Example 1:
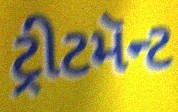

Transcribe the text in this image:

ટ્રીટમૅન્ટ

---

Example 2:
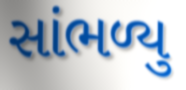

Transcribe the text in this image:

સાંભળ્યુ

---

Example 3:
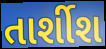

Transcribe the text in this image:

તાર્શીશ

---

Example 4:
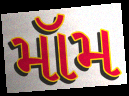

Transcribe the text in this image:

મૉમ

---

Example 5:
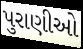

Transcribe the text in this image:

પુરાણીઓ